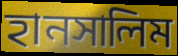
হানসালিম